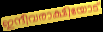
ഇന്ദീവരാക്ഷിയോട്